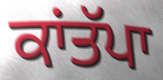
ਕਾਂਤੱਪਾ